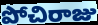
పోచిరాజు